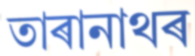
তাৰানাথৰ